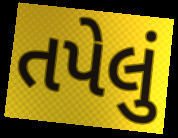
તપેલું